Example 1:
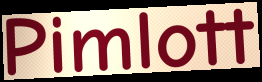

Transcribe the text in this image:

Pimlott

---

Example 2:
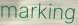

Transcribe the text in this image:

marking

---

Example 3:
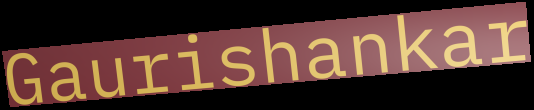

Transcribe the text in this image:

Gaurishankar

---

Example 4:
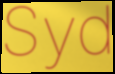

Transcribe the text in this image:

Syd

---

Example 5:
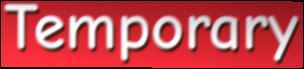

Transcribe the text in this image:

Temporary